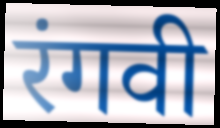
रंगवी